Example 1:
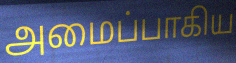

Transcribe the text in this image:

அமைப்பாகிய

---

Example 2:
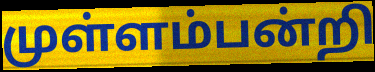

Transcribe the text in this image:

முள்ளம்பன்றி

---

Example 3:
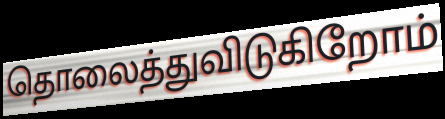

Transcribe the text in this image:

தொலைத்துவிடுகிறோம்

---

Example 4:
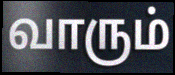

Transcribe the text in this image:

வாரும்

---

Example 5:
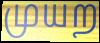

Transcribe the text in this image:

முயற